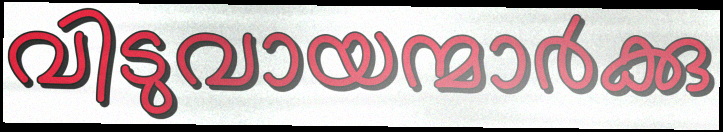
വിടുവായന്മാർക്കു